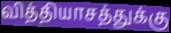
வித்தியாசத்துக்கு